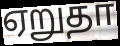
ஏறுதா